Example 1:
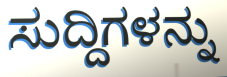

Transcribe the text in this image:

ಸುದ್ದಿಗಳನ್ನು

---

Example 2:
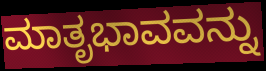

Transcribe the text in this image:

ಮಾತೃಭಾವವನ್ನು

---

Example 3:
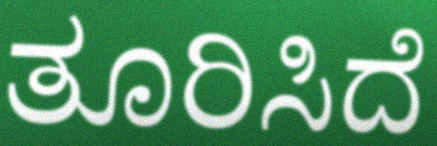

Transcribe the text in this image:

ತೂರಿಸಿದೆ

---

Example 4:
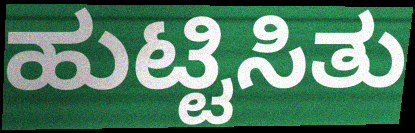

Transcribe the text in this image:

ಹುಟ್ಟಿಸಿತು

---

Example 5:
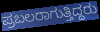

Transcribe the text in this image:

ಪ್ರಬಲರಾಗುತ್ತಿದ್ದರು